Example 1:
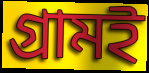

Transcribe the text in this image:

গ্রামই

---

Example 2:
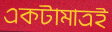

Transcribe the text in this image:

একটামাত্রই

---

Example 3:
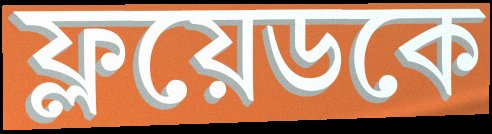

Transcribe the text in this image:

ফ্লয়েডকে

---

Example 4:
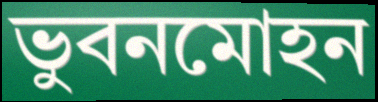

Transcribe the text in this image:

ভুবনমোহন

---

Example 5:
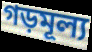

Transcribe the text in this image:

গড়মূল্য